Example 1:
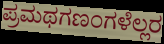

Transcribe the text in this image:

ಪ್ರಮಥಗಣಂಗಳೆಲ್ಲರ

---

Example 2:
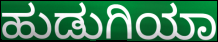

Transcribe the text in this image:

ಹುಡುಗಿಯಾ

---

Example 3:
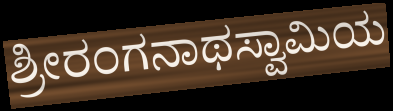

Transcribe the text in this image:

ಶ್ರೀರಂಗನಾಥಸ್ವಾಮಿಯ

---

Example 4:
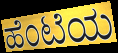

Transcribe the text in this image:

ಹೆಂಟೆಯ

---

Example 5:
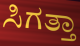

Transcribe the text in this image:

ಸಿಗತ್ತಾ